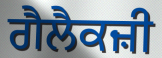
ਗੈਲੈਕਜ਼ੀ